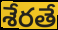
శేరతే